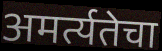
अमर्त्यतेचा